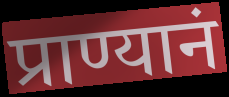
प्राण्यानं